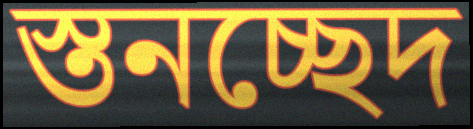
স্তনচ্ছেদ